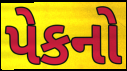
પેકનો